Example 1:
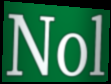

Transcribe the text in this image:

Nol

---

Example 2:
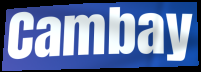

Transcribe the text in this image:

Cambay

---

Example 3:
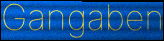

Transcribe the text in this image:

Gangaben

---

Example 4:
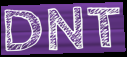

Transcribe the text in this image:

DNT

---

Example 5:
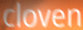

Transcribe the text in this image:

cloven